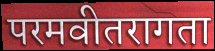
परमवीतरागता